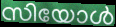
സിയോൾ